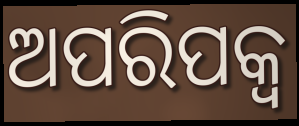
ଅପରିପକ୍ୱ